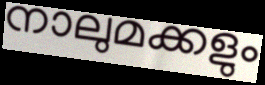
നാലുമക്കളും